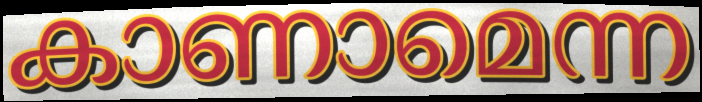
കാണാമെന്ന